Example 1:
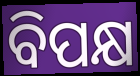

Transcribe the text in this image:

ବିପକ୍ଷ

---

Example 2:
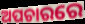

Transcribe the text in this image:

ଅପଚାରରେ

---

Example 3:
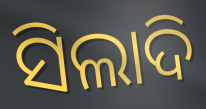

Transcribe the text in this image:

ସିଲାଦି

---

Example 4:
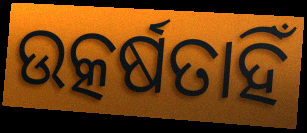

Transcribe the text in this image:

ଉତ୍କର୍ଷତାହିଁ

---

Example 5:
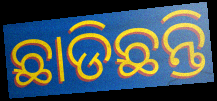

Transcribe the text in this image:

ଛାଡିଛନ୍ତି